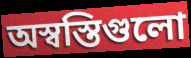
অস্বস্তিগুলো